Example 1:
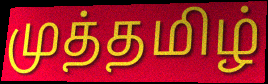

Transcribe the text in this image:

முத்தமிழ்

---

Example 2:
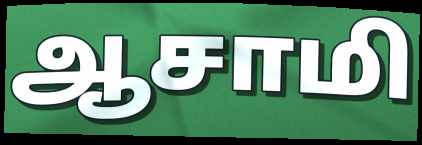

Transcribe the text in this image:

ஆசாமி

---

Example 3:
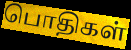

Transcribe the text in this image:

பொதிகள்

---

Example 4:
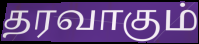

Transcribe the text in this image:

தரவாகும்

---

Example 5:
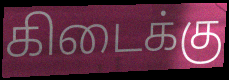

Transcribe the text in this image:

கிடைக்கு